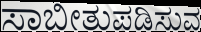
ಸಾಬೀತುಪಡಿಸುವ